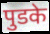
पुडके